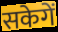
सकेगें